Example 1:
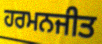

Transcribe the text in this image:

ਹਰਮਨਜੀਤ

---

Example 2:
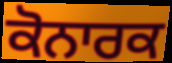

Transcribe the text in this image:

ਕੋਨਾਰਕ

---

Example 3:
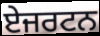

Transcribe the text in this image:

ਏਜਰਟਨ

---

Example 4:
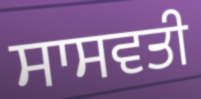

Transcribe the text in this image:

ਸਾਸਵਤੀ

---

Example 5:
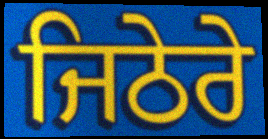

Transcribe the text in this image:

ਜਿਠੇਰੇ